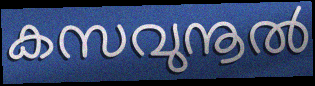
കസവുനൂൽ